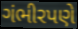
ગંભીરપણે